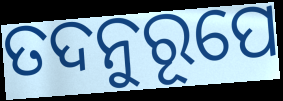
ତଦନୁରୂପେ